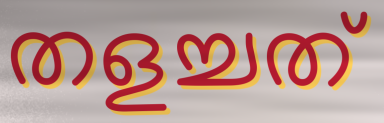
തളച്ചത്